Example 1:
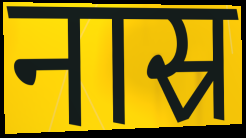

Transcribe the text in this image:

नास्र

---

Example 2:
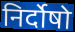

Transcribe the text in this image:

निर्दोषो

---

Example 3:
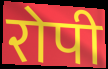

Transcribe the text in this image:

रोपी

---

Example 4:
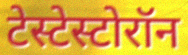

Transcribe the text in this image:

टेस्टेस्टोरॉन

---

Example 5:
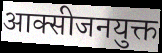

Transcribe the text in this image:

आक्सीजनयुक्त